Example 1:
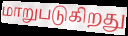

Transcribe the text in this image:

மாறுபடுகிறது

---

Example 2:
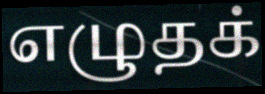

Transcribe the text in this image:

எழுதக்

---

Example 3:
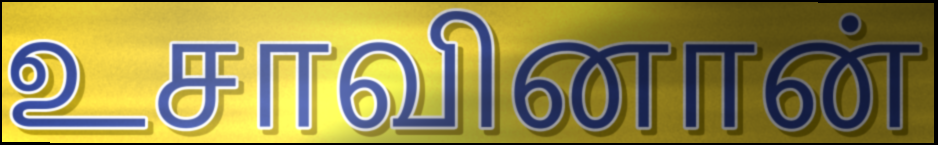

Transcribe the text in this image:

உசாவினான்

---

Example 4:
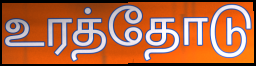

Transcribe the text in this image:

உரத்தோடு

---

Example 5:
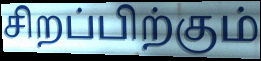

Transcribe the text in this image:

சிறப்பிற்கும்